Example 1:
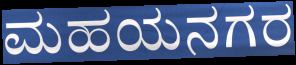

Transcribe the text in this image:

ಮಹಯನಗರ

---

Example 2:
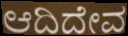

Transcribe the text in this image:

ಆದಿದೇವ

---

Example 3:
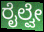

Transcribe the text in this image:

ರೈಲ್ವೇ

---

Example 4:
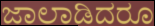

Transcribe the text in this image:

ಜಾಲಾಡಿದರೂ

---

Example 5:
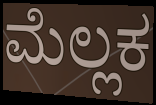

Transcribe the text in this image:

ಮೆಲ್ಲಕ